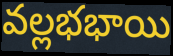
వల్లభభాయి